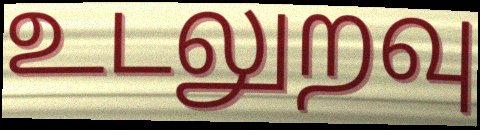
உடலுறவு